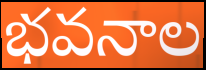
భవనాల